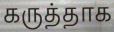
கருத்தாக